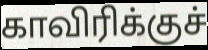
காவிரிக்குச்